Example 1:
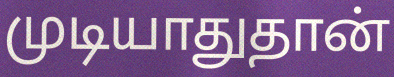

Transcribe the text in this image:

முடியாதுதான்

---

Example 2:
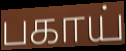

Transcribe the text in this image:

பகாய்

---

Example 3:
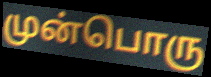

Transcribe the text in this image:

முன்பொரு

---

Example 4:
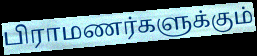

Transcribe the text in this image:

பிராமணர்களுக்கும்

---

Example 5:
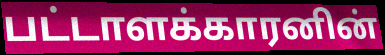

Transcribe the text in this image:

பட்டாளக்காரனின்